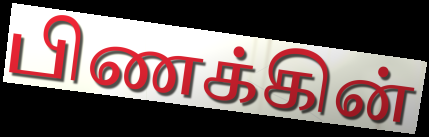
பிணக்கின்